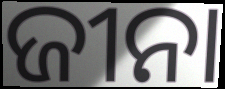
ଜୀନା